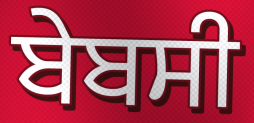
ਬੇਬਸੀ